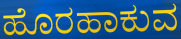
ಹೊರಹಾಕುವ